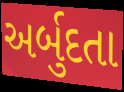
અર્બુદતા